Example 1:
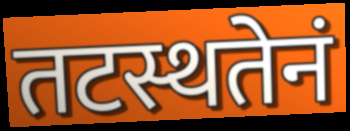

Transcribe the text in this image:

तटस्थतेनं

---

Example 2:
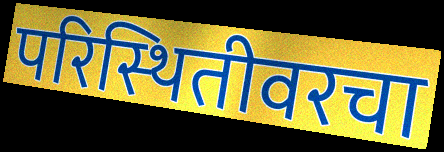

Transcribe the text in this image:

परिस्थितीवरचा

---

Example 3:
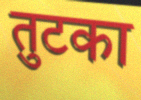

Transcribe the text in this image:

तुटका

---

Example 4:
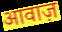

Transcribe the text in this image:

आवाज़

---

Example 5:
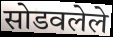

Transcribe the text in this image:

सोडवलेले